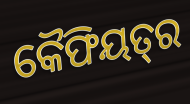
କୈଫିୟତ୍‌ର